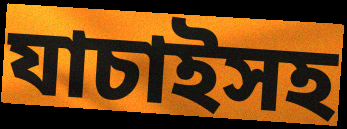
যাচাইসহ